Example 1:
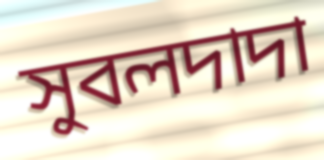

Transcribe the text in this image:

সুবলদাদা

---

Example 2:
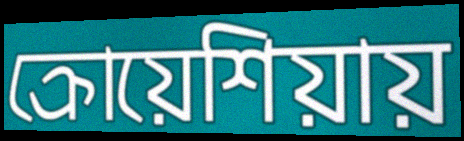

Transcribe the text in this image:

ক্রোয়েশিয়ায়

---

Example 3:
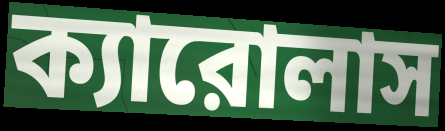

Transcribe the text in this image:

ক্যারোলাস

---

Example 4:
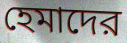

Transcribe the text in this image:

হেমাদের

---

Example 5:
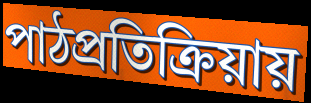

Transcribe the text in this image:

পাঠপ্রতিক্রিয়ায়